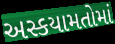
અસ્કયામતોમાં